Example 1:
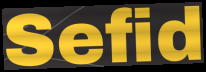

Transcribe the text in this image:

Sefid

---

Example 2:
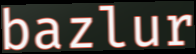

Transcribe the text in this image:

bazlur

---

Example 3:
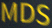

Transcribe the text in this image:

MDS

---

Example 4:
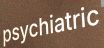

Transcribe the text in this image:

psychiatric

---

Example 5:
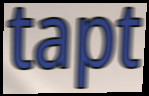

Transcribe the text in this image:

tapt